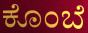
ಕೊಂಬೆ